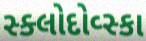
સ્ક્લોદોવ્સ્કા